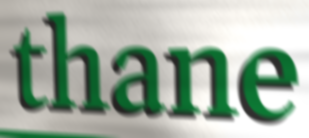
thane